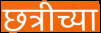
छत्रीच्या